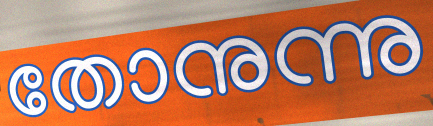
തോനുന്നു